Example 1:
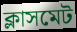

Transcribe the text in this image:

ক্লাসমেট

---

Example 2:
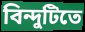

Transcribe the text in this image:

বিন্দুটিতে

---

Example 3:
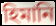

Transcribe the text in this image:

হিমানি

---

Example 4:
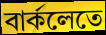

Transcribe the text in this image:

বার্কলেতে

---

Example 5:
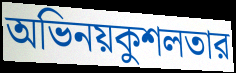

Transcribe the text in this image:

অভিনয়কুশলতার